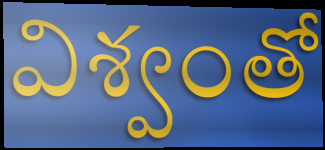
విశ్వంతో